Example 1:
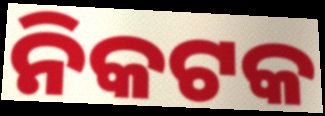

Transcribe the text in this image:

ନିକଟକ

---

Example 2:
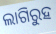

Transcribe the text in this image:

ଲାଗିରୁହ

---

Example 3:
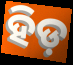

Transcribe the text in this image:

ହିଡ଼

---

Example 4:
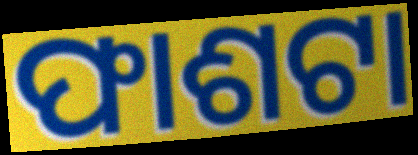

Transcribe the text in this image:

ଫାଶଟା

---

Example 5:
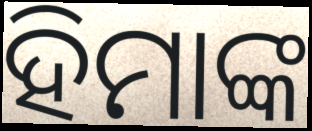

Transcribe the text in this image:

ହିମାଙ୍କ